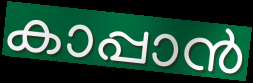
കാപ്പാൻ